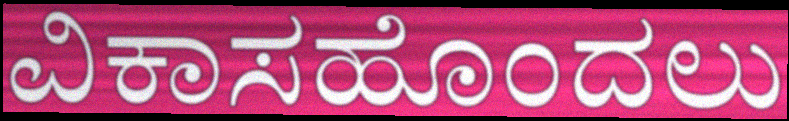
ವಿಕಾಸಹೊಂದಲು